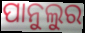
ପାନୁଲୁର